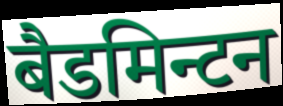
बैडमिन्टन